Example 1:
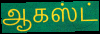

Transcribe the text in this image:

ஆகஸ்ட்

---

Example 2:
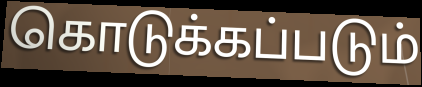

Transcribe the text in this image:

கொடுக்கப்படும்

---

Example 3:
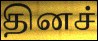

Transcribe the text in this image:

தினச்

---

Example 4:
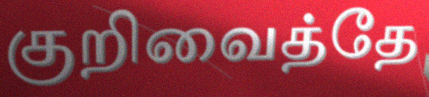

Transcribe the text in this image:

குறிவைத்தே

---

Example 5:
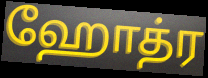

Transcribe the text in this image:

ஹோத்ர